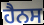
ਹੈਨਸ